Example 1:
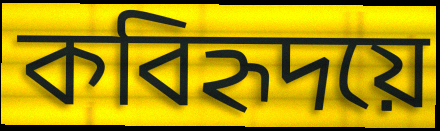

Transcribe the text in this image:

কবিহৃদয়ে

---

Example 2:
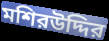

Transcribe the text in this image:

মশিরউদ্দির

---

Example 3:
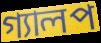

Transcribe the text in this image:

গ্যালপ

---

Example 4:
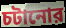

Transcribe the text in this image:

চটানোর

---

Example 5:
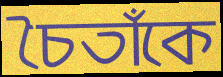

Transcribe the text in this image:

চৈতাঁকে